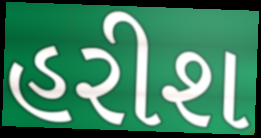
હરીશ